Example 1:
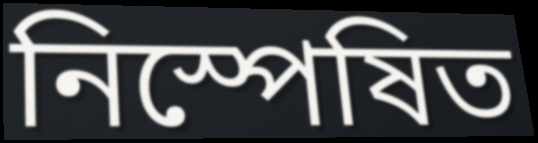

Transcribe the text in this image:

নিস্পেষিত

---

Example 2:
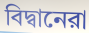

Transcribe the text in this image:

বিদ্বানেরা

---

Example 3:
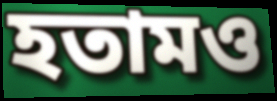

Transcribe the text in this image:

হতামও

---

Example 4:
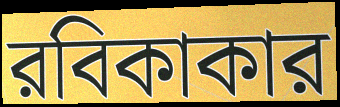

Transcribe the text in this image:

রবিকাকার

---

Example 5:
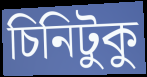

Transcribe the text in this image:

চিনিটুকু